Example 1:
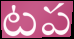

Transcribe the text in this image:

టప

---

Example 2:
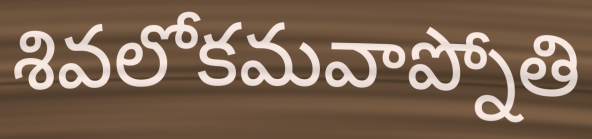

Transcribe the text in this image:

శివలోకమవాప్నోతి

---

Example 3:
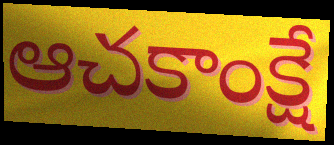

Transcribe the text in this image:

ఆచకాంక్షే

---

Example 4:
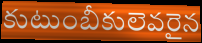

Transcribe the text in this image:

కుటుంబీకులెవరైన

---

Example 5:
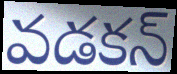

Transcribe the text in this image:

వడకన్